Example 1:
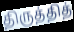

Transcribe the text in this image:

திருத்தித்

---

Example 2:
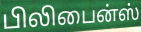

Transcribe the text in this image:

பிலிபைன்ஸ்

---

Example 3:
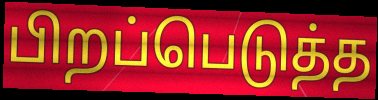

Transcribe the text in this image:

பிறப்பெடுத்த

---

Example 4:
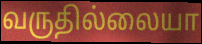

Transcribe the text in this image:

வருதில்லையா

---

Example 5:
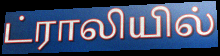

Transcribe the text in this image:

ட்ராலியில்